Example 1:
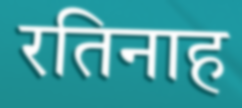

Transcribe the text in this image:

रतिनाह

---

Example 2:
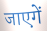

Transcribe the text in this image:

जाएगें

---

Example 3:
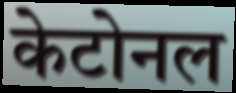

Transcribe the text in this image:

केटोनल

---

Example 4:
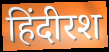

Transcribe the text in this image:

हिंदीरश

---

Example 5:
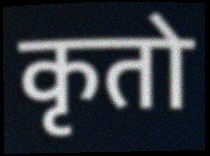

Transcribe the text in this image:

कृतो